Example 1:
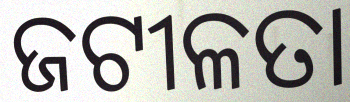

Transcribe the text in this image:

ଜଟୀଳତା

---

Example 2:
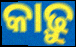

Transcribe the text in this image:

କାଢ଼ୁ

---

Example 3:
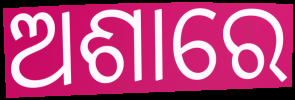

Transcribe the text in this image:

ଅଶାରେ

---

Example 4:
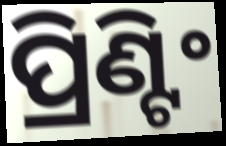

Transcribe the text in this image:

ପ୍ରିଣ୍ଟିଂ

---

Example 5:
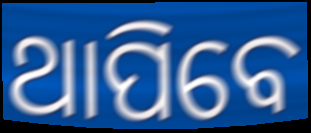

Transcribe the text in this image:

ଥାପିବେ